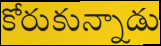
కోరుకున్నాడు